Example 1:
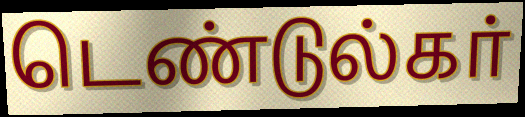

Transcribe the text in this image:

டெண்டுல்கர்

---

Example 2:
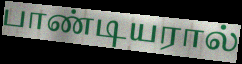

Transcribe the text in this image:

பாண்டியரால்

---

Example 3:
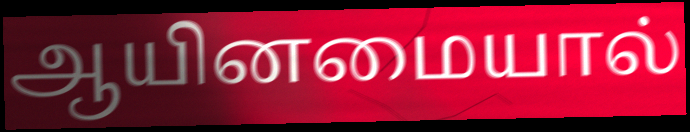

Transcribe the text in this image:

ஆயினமையால்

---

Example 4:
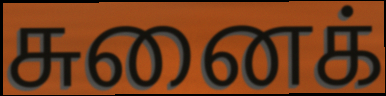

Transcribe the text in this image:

சுனைக்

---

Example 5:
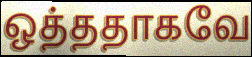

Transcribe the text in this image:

ஒத்ததாகவே